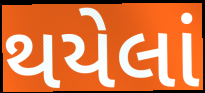
થયેલાં